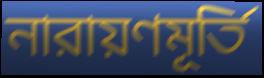
নারায়ণমূর্তি